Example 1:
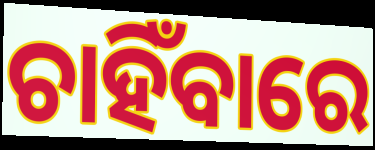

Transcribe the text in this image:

ଚାହିଁବାରେ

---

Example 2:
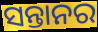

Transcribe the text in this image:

ସନ୍ତାନର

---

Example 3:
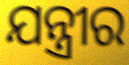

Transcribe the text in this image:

ଯନ୍ତ୍ରୀର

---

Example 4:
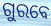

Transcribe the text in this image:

ଗୁରବେ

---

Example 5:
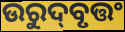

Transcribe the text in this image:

ଉରୁଦ୍‌ବୃତ୍ତଂ